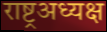
राष्ट्रअध्यक्ष